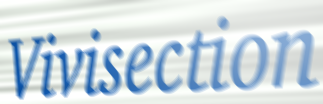
Vivisection